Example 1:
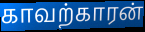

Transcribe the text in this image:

காவற்காரன்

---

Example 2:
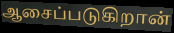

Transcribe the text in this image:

ஆசைப்படுகிறான்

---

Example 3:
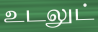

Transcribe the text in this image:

உடலுட்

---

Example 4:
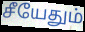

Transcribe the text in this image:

சீயேதும்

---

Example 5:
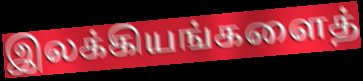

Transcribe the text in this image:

இலக்கியங்களைத்